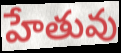
హేతువు